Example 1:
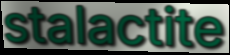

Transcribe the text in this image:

stalactite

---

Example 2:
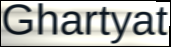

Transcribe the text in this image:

Ghartyat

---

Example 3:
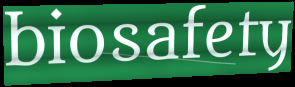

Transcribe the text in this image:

biosafety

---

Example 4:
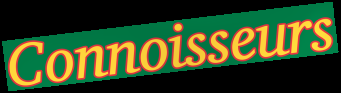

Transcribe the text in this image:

Connoisseurs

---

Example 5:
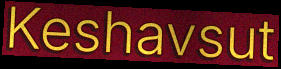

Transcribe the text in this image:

Keshavsut